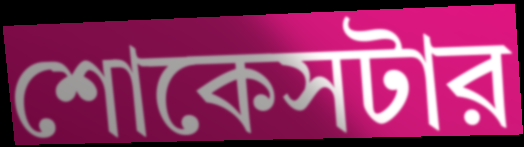
শোকেসটার